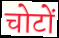
चोटों